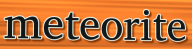
meteorite